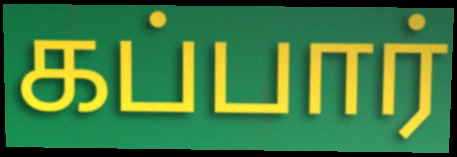
கப்பார்